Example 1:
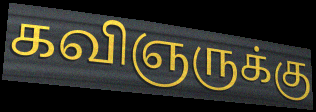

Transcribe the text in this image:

கவிஞருக்கு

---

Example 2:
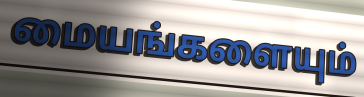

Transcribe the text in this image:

மையங்களையும்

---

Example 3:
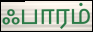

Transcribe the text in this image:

ஃபாரம்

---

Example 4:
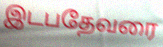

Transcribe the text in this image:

இடபதேவரை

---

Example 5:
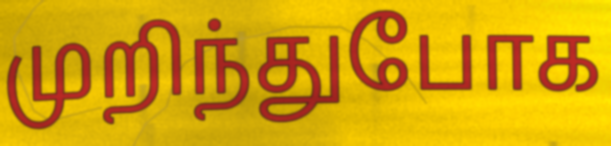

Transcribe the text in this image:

முறிந்துபோக